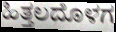
ಹಿತ್ತಲದೊಳಗ